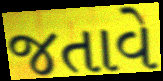
જતાવે